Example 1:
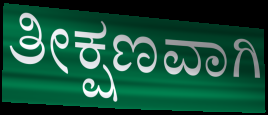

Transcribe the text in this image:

ತೀಕ್ಷಣವಾಗಿ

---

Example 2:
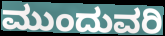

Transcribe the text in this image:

ಮುಂದುವರಿ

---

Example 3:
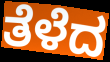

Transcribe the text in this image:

ತೆಳೆದ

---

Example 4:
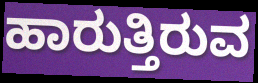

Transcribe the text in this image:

ಹಾರುತ್ತಿರುವ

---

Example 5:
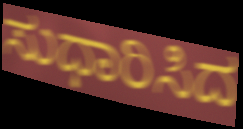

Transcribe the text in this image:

ಸುಧಾರಿಸಿದ